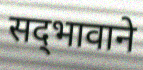
सद्‌भावाने